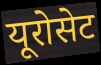
यूरोसेट